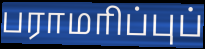
பராமரிப்புப்